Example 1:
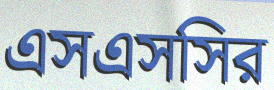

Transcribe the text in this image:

এসএসসির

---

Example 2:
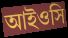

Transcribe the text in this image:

আইওসি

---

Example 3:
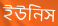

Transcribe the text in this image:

ইউনিস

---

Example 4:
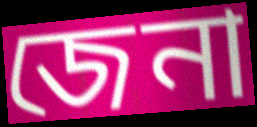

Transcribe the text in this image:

জেনা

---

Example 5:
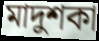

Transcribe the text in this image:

মাদুশকা